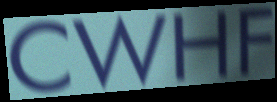
CWHF